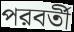
পরবর্তী